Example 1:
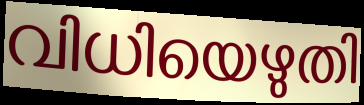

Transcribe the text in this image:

വിധിയെഴുതി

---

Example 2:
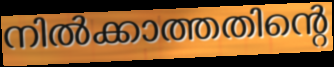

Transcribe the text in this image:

നിൽക്കാത്തതിന്റെ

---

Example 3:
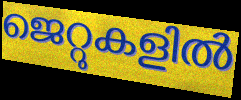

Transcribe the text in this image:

ജെറ്റുകളിൽ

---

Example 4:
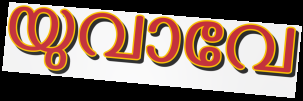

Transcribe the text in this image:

യുവാവേ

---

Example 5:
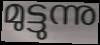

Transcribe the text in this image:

മുട്ടുന്നു